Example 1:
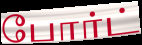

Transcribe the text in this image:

போர்ட்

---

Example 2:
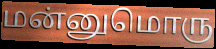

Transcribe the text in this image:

மன்னுமொரு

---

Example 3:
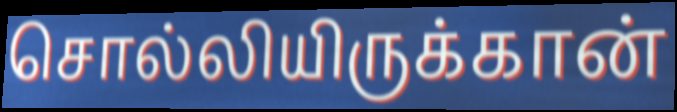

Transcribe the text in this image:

சொல்லியிருக்கான்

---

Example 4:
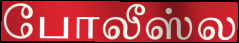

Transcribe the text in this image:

போலீஸ்ல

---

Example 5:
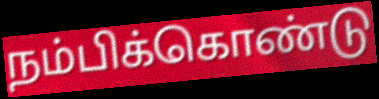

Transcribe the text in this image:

நம்பிக்கொண்டு